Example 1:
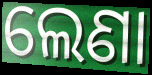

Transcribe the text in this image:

ଲେଣା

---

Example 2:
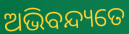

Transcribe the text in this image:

ଅଭିବନ୍ଦ୍ୟତେ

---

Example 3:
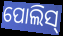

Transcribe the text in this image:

ପୋଲିସ୍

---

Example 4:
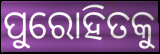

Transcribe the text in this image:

ପୁରୋହିତକୁ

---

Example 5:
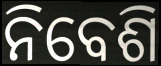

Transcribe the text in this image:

ନିବେଶି